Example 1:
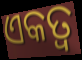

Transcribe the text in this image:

ଏକତ୍ୱ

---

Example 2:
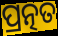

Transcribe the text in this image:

ପ୍ରତ୍ନତ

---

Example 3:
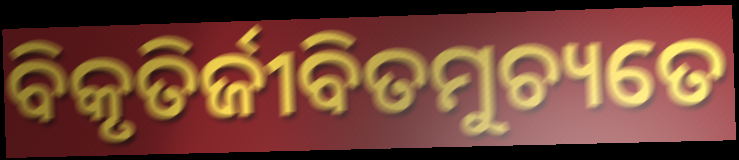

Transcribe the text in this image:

ବିକୃତିର୍ଜୀବିତମୁଚ୍ୟତେ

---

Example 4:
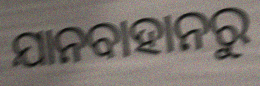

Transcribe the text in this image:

ଯାନବାହାନରୁ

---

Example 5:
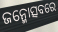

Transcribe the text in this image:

ଜନ୍ମୋତ୍ସବରେ